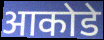
आकोडे